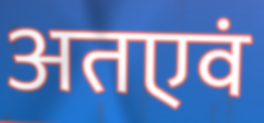
अतएवं